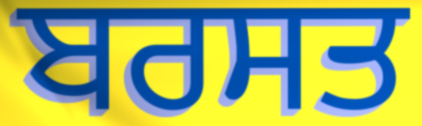
ਬਰਸਤ